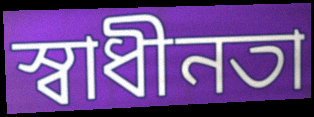
স্বাধীনতা